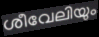
ശീവേലിയും